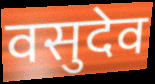
वसुदेव